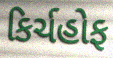
કિર્ચહોફ